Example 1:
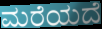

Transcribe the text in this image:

ಮರೆಯದೆ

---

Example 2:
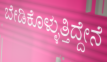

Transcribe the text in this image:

ಬೇಡಿಕೊಳ್ಳುತ್ತಿದ್ದೇನೆ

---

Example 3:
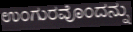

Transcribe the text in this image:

ಉಂಗುರವೊಂದನ್ನು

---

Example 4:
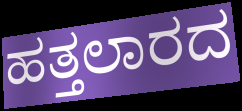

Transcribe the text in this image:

ಹತ್ತಲಾರದ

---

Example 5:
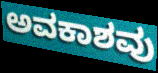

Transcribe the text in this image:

ಅವಕಾಶವು